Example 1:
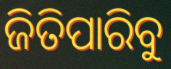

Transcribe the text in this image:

ଜିତିପାରିବୁ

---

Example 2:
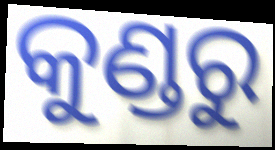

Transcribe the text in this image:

କୁଣ୍ଡରୁ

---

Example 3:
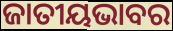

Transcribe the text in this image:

ଜାତୀୟଭାବର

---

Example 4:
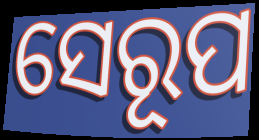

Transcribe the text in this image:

ସେରୂପ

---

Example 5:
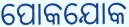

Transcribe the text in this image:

ପୋକଯୋକ